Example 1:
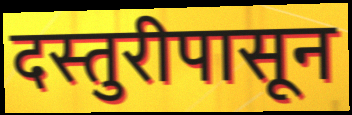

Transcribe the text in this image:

दस्तुरीपासून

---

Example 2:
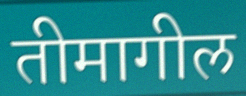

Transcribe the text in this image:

तीमागील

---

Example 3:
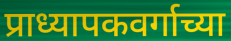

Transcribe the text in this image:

प्राध्यापकवर्गाच्या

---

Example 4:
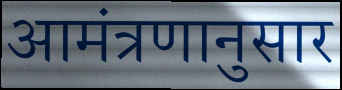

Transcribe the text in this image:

आमंत्रणानुसार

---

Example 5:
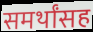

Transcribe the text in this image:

समर्थांसह